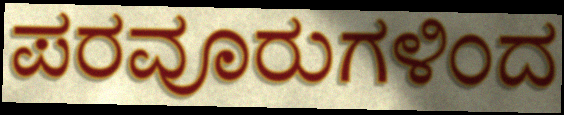
ಪರವೂರುಗಳಿಂದ